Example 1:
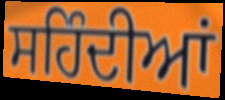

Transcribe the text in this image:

ਸਹਿੰਦੀਆਂ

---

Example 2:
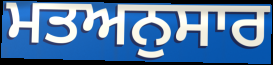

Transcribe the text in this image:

ਮਤਅਨੁਸਾਰ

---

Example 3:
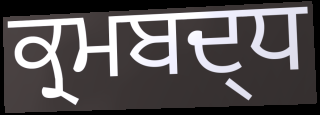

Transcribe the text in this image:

ਕ੍ਰਮਬਦ੍ਧ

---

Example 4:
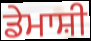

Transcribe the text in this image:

ਡੇਮਾਸ਼ੀ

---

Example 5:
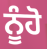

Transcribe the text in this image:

ਨੂੰਹੋ